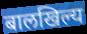
बालखिल्य